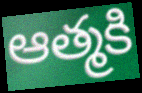
ఆత్మకి